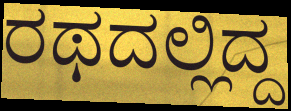
ರಥದಲ್ಲಿದ್ದ